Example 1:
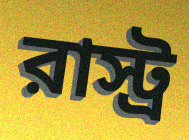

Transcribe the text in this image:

রাস্ট্র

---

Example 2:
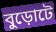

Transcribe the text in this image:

বুড়োটে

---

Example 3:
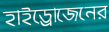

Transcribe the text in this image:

হাইড্রোজেনের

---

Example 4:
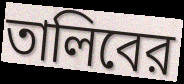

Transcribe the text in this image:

তালিবের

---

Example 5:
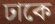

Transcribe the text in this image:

ঢাকে